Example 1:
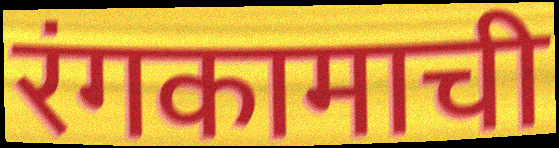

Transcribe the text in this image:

रंगकामाची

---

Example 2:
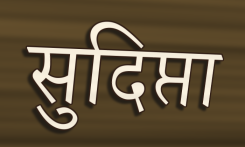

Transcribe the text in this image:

सुदिप्ता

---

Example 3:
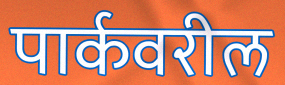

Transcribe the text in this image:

पार्कवरील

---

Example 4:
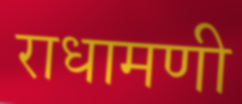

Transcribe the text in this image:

राधामणी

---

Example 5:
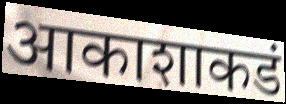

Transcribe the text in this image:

आकाशाकडं